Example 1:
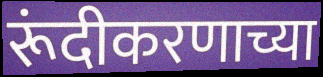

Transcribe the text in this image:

रूंदीकरणाच्या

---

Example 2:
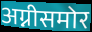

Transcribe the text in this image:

अग्नीसमोर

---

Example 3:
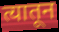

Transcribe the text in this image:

त्‍यातून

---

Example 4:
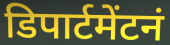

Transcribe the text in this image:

डिपार्टमेंटनं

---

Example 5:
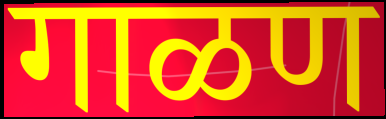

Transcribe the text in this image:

गाळण